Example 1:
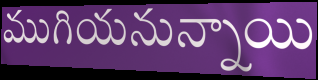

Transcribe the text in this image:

ముగియనున్నాయి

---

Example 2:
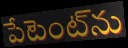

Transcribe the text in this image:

పేటెంట్‌ను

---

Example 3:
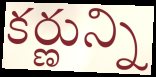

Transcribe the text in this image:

కర్ణున్ని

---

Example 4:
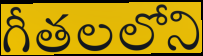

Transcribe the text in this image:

గీతలలోని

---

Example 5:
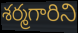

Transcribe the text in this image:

శర్మగారిని